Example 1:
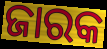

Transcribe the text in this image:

ଜାରକ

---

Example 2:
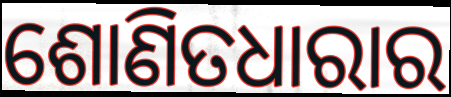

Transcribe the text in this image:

ଶୋଣିତଧାରାର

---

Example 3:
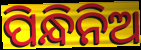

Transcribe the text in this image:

ପିନ୍ଧିନିଅ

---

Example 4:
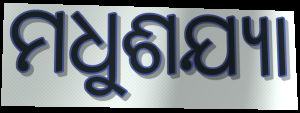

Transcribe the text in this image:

ମଧୁଶଯ୍ୟା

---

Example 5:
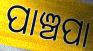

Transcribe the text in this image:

ପାଞ୍ଚପା